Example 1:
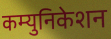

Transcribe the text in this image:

कम्युनिकेशन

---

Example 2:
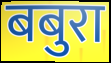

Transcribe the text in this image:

बबुरा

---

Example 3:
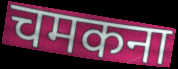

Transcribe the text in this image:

चमकना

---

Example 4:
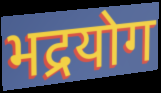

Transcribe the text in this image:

भद्रयोग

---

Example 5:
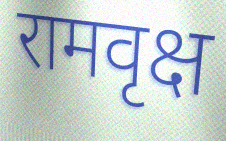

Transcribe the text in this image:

रामवृक्ष